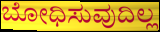
ಬೋಧಿಸುವುದಿಲ್ಲ